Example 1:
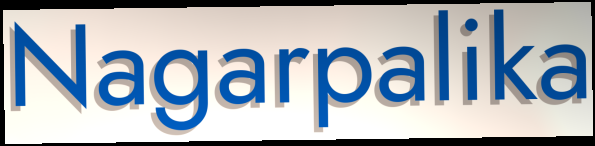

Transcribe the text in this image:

Nagarpalika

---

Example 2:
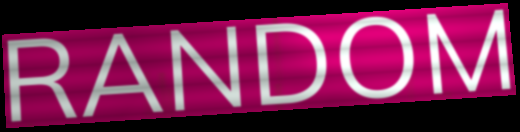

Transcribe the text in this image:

RANDOM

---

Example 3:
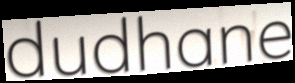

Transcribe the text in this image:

dudhane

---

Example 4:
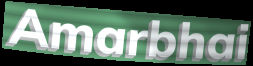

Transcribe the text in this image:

Amarbhai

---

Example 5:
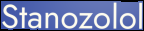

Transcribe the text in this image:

Stanozolol